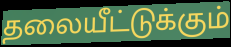
தலையீட்டுக்கும்